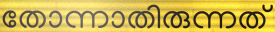
തോന്നാതിരുന്നത്